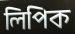
লিপিক